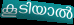
കൂടിയാൽ